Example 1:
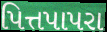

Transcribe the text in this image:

પિત્તપાપરા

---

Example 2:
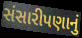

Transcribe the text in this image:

સંસારીપણાનું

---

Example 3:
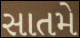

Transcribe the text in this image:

સાતમે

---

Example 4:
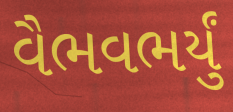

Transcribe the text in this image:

વૈભવભર્યું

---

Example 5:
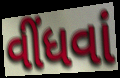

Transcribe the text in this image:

વીંધવાં